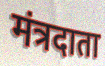
मंत्रदाता